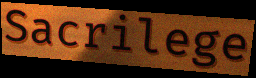
Sacrilege